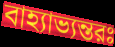
বাহ্যাভ্যন্তরঃ